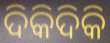
ଦିକିଦିକି